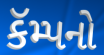
કૅમ્પનો